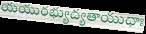
యయురభ్యుద్యతాయుధాః